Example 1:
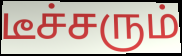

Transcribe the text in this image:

டீச்சரும்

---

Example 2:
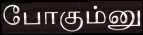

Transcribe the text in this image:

போகும்னு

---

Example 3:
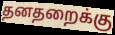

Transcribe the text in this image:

தனதறைக்கு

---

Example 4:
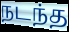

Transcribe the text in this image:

நடந்த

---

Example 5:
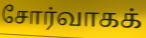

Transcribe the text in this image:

சோர்வாகக்